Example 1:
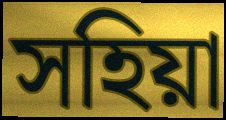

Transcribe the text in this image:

সহিয়া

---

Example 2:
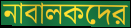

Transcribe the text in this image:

নাবালকদের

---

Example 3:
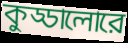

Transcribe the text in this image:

কুড্ডালোরে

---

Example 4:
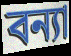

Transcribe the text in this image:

বন্যা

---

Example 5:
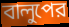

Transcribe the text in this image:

বালুপের